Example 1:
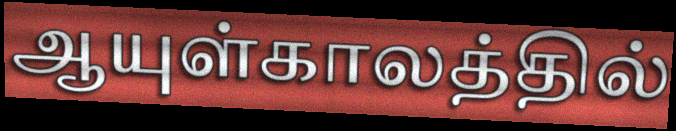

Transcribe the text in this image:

ஆயுள்காலத்தில்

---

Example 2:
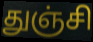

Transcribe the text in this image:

துஞ்சி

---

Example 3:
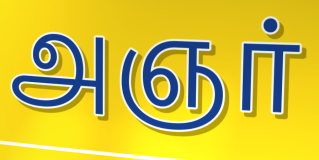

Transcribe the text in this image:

அஞர்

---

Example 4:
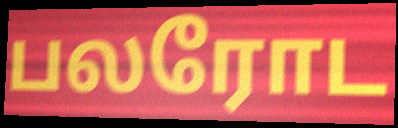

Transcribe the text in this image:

பலரோட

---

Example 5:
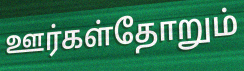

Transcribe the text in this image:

ஊர்கள்தோறும்